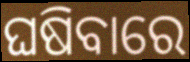
ଘଷିବାରେ